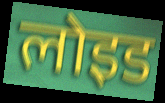
लोइड